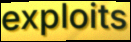
exploits